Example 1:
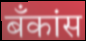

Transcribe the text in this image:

बँकांस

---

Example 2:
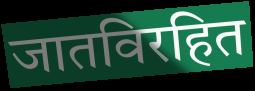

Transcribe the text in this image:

जातविरहित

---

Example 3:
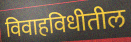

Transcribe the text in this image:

विवाहविधीतील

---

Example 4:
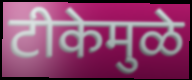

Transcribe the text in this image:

टीकेमुळे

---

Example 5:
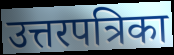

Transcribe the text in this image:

उत्तरपत्रिका